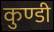
कुण्डी